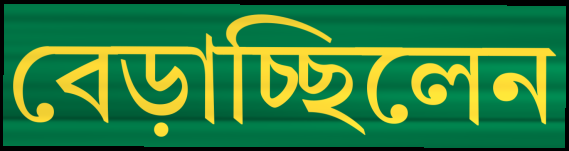
বেড়াচ্ছিলেন